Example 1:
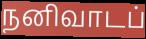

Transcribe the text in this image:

நனிவாடப்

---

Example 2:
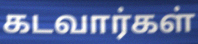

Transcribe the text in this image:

கடவார்கள்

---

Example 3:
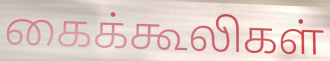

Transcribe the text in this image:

கைக்கூலிகள்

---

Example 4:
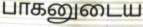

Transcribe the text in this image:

பாகனுடைய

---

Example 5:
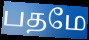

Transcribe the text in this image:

பதமே